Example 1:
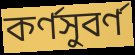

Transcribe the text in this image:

কর্ণসুবর্ণ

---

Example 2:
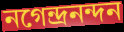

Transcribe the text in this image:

নগেন্দ্রনন্দন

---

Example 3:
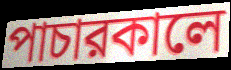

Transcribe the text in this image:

পাচারকালে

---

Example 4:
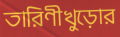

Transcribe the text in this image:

তারিণীখুড়োর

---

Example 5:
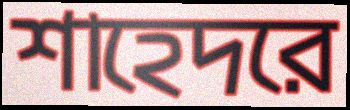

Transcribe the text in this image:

শাহেদরে